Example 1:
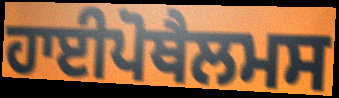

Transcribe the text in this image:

ਹਾਈਪੋਥੈਲਮਸ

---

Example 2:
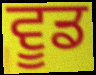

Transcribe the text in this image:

ਵੂਡ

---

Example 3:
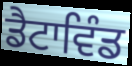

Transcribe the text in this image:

ਡੈਟਾਵਿੰਡ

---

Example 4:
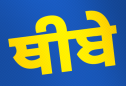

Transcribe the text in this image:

ਥੀਬੇ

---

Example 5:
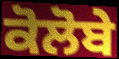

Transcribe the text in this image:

ਕੋਲੋਬੇ